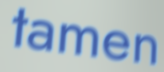
tamen